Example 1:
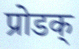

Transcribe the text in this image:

प्रोडक्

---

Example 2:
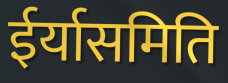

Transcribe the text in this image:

ईर्यासमिति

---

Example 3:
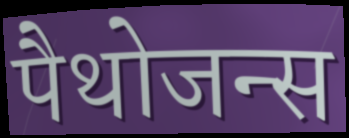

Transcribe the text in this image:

पैथोजन्स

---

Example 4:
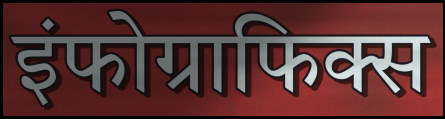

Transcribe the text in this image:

इंफोग्राफिक्स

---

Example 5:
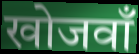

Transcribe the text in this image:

खोजवाँ